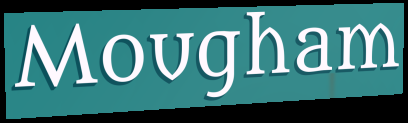
Mougham